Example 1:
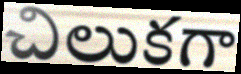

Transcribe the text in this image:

చిలుకగా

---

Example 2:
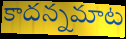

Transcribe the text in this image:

కాదన్నమాట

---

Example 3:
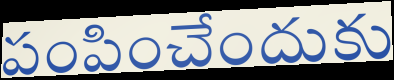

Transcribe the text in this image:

పంపించేందుకు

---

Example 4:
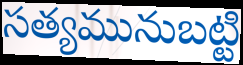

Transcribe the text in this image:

సత్యమునుబట్టి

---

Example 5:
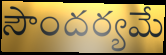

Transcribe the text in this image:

సౌందర్యమే